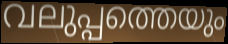
വലുപ്പത്തെയും